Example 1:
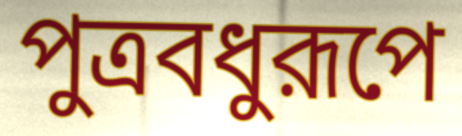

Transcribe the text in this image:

পুত্রবধুরূপে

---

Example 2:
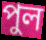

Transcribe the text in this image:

পুল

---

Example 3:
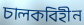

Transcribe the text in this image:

চালকবিহীন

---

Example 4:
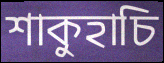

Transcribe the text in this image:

শাকুহাচি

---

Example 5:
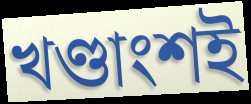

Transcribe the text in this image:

খণ্ডাংশই